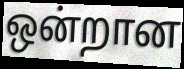
ஒன்றான